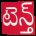
టెన్త్